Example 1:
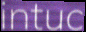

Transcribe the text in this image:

intuc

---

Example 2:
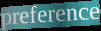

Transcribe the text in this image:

preference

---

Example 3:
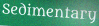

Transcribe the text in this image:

Sedimentary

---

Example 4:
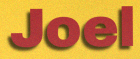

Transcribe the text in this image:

Joel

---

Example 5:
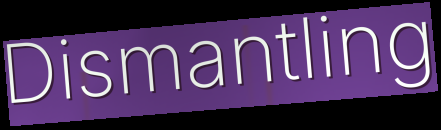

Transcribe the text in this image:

Dismantling